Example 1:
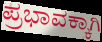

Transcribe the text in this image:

ಪ್ರಭಾವಕ್ಕಾಗಿ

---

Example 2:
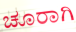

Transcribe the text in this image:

ಚೂರಾಗಿ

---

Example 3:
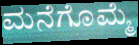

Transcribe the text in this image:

ಮನೆಗೊಮ್ಮೆ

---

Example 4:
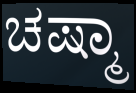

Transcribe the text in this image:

ಚಷ್ಮಾ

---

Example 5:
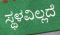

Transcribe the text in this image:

ಸ್ಥಳವಿಲ್ಲದೆ